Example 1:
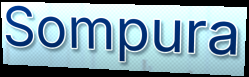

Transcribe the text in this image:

Sompura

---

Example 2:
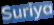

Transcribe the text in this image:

Suriya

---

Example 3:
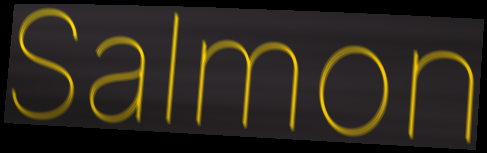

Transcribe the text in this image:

Salmon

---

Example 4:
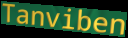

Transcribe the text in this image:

Tanviben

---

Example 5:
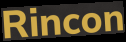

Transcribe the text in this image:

Rincon